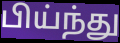
பிய்ந்து